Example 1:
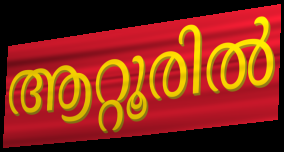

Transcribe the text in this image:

ആറ്റൂരിൽ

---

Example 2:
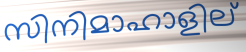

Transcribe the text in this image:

സിനിമാഹാളില്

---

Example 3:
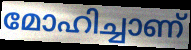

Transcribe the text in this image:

മോഹിച്ചാണ്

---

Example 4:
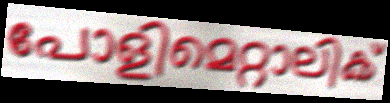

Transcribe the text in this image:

പോളിമെറ്റാലിക്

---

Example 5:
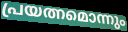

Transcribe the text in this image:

പ്രയത്നമൊന്നും